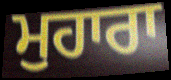
ਮੁਹਾਰਾ